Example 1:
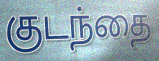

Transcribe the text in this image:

குடந்தை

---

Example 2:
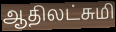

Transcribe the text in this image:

ஆதிலட்சுமி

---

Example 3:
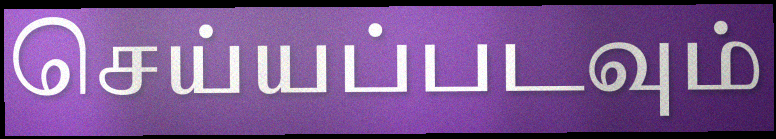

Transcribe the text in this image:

செய்யப்படவும்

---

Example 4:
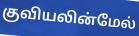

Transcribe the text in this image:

குவியலின்மேல்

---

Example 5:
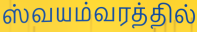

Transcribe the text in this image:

ஸ்வயம்வரத்தில்